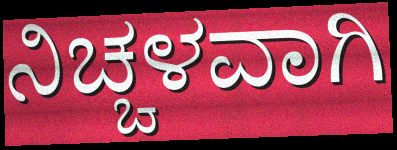
ನಿಚ್ಚಳವಾಗಿ